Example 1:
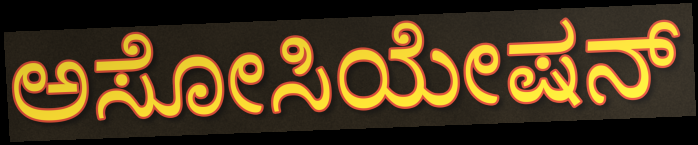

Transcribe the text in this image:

ಅಸೋಸಿಯೇಷನ್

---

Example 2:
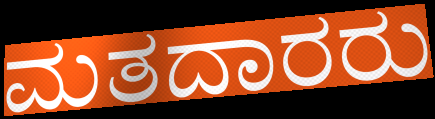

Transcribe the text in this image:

ಮತದಾರರು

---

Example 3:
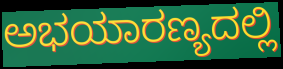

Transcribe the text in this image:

ಅಭಯಾರಣ್ಯದಲ್ಲಿ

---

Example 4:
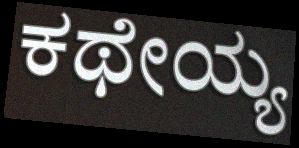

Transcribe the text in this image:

ಕಥೇಯ್ಯ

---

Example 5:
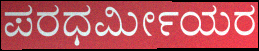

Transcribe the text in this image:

ಪರಧರ್ಮೀಯರ